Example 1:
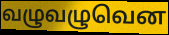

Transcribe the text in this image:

வழுவழுவென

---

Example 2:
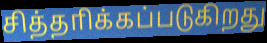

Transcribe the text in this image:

சித்தரிக்கப்படுகிறது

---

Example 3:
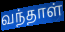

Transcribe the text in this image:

வந்தாள்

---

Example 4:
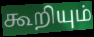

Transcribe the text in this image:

கூறியும்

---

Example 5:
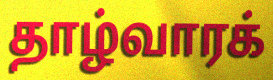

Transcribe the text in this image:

தாழ்வாரக்